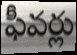
ఫీవర్లు